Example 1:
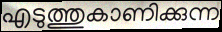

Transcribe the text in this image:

എടുത്തുകാണിക്കുന്ന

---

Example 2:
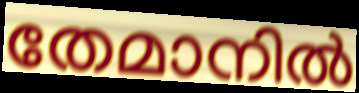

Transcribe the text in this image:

തേമാനിൽ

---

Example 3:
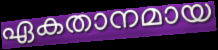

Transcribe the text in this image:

ഏകതാനമായ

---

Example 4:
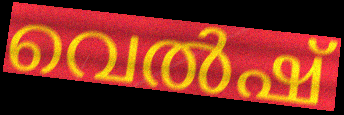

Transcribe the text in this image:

വെൽഷ്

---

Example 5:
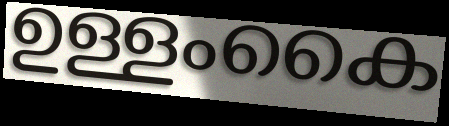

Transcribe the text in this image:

ഉള്ളംകൈ